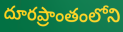
దూరప్రాంతంలోని